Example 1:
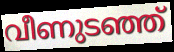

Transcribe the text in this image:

വീണുടഞ്ഞ്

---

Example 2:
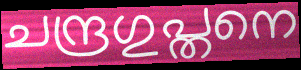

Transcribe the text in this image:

ചന്ദ്രഗുപ്തനെ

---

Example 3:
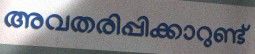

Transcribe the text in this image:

അവതരിപ്പിക്കാറുണ്ട്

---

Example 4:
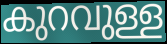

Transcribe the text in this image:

കുറവുള്ള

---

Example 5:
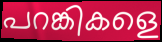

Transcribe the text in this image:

പറങ്കികളെ